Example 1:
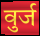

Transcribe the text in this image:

वुर्ज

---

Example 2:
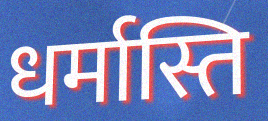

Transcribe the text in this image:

धर्मास्ति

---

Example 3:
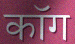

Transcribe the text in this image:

कॉग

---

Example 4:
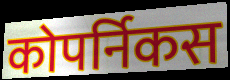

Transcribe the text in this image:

कोपर्निकस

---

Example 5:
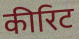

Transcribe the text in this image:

कीरिट